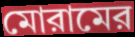
মোরামের